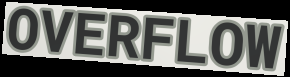
OVERFLOW